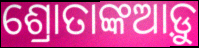
ଶ୍ରୋତାଙ୍କଆଡ଼ୁ